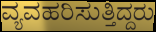
ವ್ಯವಹರಿಸುತ್ತಿದ್ದರು